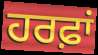
ਹਰਫ਼ਾਂ